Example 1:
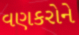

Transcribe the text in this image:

વણકરોને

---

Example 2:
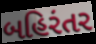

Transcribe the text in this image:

બહિરંતર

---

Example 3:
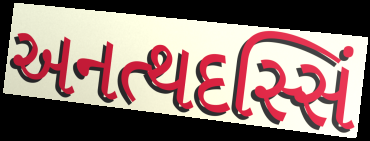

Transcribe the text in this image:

અનત્થદસ્સિં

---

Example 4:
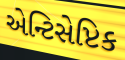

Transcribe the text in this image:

એન્ટિસેપ્ટિક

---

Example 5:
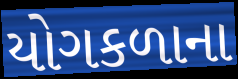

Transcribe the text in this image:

યોગકળાના